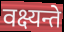
वक्ष्यन्ते